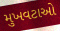
મુખવટાઓ